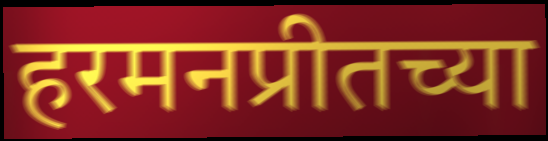
हरमनप्रीतच्या